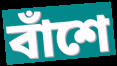
বাঁশে